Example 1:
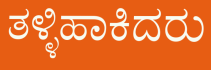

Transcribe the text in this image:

ತಳ್ಳಿಹಾಕಿದರು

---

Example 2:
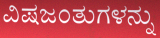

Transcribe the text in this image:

ವಿಷಜಂತುಗಳನ್ನು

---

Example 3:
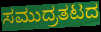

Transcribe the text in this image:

ಸಮುದ್ರತಟದ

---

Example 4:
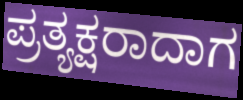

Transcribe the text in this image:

ಪ್ರತ್ಯಕ್ಷರಾದಾಗ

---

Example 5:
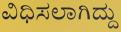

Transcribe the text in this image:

ವಿಧಿಸಲಾಗಿದ್ದು